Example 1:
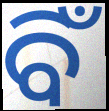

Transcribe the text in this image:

ବିଁ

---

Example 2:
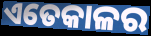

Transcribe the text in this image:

ଏତେକାଳର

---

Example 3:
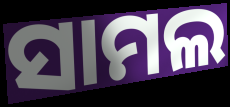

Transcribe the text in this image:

ସାମଲ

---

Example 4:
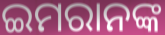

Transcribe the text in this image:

ଇମରାନଙ୍କ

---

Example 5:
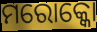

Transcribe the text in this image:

ମରୋକ୍କୋ